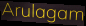
Arulagam